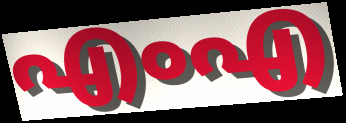
എംഎ